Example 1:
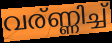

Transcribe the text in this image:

വര്ണ്ണിച്ച്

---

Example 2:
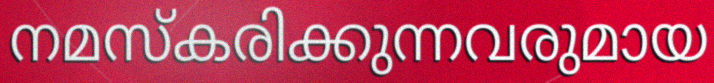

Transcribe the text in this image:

നമസ്കരിക്കുന്നവരുമായ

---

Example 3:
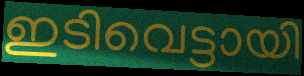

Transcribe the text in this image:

ഇടിവെട്ടായി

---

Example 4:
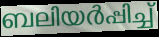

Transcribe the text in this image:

ബലിയർപ്പിച്ച്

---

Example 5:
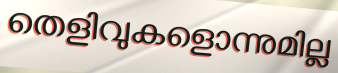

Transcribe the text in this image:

തെളിവുകളൊന്നുമില്ല